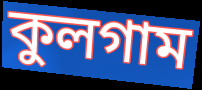
কুলগাম